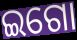
ଇଗୋ